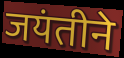
जयंतीने